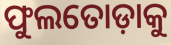
ଫୁଲତୋଡ଼ାକୁ